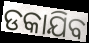
ଡକାଯିବ